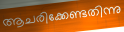
ആചരിക്കേണ്ടതിന്നു